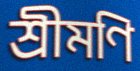
শ্রীমণি